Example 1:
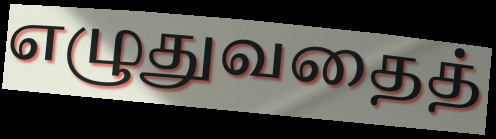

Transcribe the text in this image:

எழுதுவதைத்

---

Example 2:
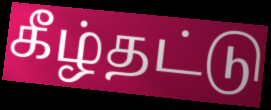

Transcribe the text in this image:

கீழ்தட்டு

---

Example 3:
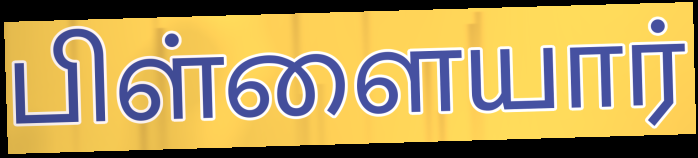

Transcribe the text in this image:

பிள்ளையார்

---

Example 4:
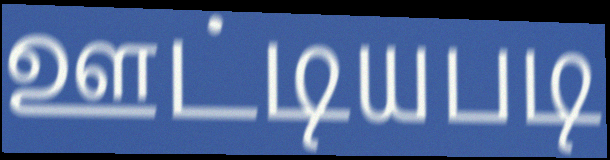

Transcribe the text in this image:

ஊட்டியபடி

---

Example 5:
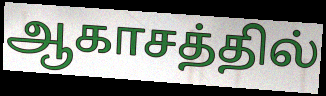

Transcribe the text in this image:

ஆகாசத்தில்